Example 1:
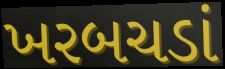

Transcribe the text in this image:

ખરબચડાં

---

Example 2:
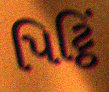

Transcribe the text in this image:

પિટ્ઠિં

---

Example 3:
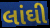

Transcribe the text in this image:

લાંઘી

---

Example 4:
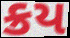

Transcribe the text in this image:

ક્રય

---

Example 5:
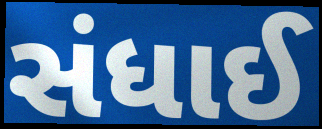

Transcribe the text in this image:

સંધાઈ